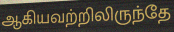
ஆகியவற்றிலிருந்தே